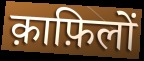
क़ाफ़िलों